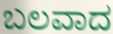
ಬಲವಾದ